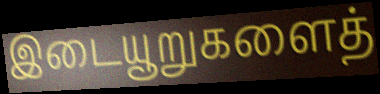
இடையூறுகளைத்